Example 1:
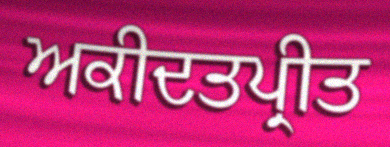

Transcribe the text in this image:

ਅਕੀਦਤਪ੍ਰੀਤ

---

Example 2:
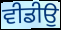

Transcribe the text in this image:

ਵੀਡੀਉ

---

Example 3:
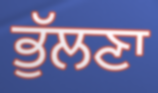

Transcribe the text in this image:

ਭੁੱਲਣਾ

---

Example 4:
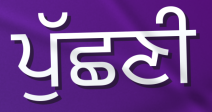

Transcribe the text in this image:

ਪੁੱਛਣੀ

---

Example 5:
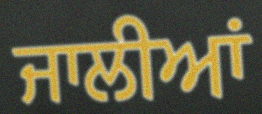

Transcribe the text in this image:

ਜਾਲੀਆਂ